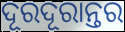
ଦୂରଦୂରାନ୍ତର